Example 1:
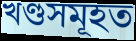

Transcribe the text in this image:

খণ্ডসমূহত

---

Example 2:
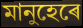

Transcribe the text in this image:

মানুহেৰে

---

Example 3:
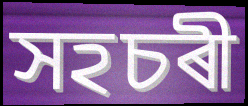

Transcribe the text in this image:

সহচৰী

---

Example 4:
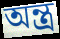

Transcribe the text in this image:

অন্ত্ৰ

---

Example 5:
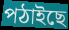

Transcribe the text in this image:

পঠাইছে